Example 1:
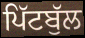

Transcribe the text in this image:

ਪਿੱਟਬੁੱਲ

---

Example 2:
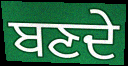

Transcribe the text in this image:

ਬਣਦੇ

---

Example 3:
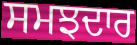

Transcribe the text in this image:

ਸਮਝਦਾਰ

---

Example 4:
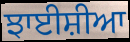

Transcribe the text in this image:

ਝਾਈਸ਼ੀਆ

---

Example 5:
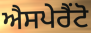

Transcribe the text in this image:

ਐਸਪੇਰੈਂਟੋ